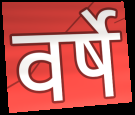
वर्षे